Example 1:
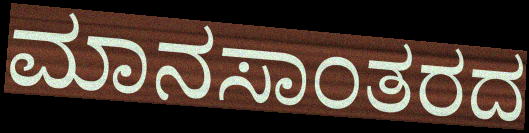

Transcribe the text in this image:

ಮಾನಸಾಂತರದ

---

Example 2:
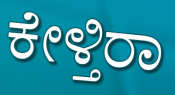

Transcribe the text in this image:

ಕೇಳ್ತಿರಾ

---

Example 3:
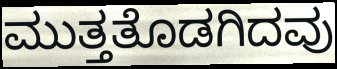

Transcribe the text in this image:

ಮುತ್ತತೊಡಗಿದವು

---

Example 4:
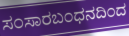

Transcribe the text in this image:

ಸಂಸಾರಬಂಧನದಿಂದ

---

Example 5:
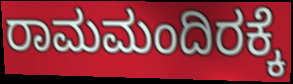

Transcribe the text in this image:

ರಾಮಮಂದಿರಕ್ಕೆ